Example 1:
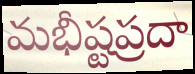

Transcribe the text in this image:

మభీష్టప్రదా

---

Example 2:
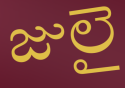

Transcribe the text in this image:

జులై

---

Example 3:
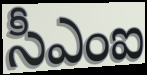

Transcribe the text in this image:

సీఎంఐ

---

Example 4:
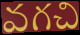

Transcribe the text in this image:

వగచి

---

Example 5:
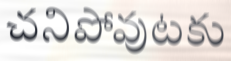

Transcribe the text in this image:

చనిపోవుటకు